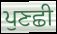
ਪੁਣਛੀ